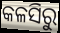
କଳସିରୁ